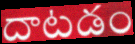
దాటడం